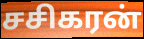
சசிகரன்